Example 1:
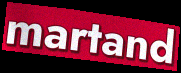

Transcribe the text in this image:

martand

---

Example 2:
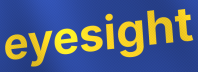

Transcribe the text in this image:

eyesight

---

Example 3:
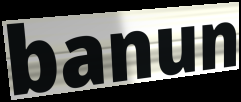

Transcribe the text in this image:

banun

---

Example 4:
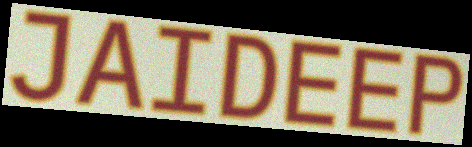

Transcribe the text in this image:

JAIDEEP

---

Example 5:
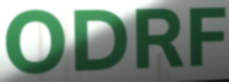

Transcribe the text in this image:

ODRF